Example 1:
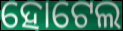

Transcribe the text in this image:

ହୋଟେଲ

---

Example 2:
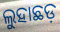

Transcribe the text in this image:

ଲୁହାଛଡ଼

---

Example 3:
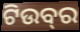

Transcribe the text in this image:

ଟିଉବ୍‍ର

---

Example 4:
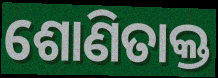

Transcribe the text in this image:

ଶୋଣିତାକ୍ତ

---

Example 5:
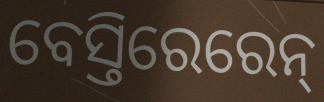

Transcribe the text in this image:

ବେସ୍ତିରେରେନ୍